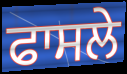
ਫਾਸਲੇ